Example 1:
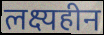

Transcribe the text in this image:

लक्ष्यहीन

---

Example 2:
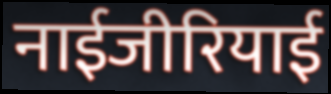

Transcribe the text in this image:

नाईजीरियाई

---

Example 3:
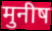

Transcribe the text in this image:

मुनीष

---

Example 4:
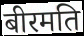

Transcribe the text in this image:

बीरमति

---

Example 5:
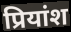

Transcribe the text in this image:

प्रियांश